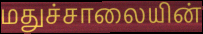
மதுச்சாலையின்